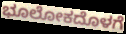
ಭೂಲೋಕದೊಳಗೆ